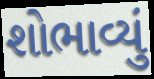
શોભાવ્યું